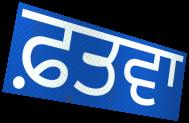
ਫ਼ਤਵਾ